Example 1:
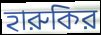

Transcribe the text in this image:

হারুকির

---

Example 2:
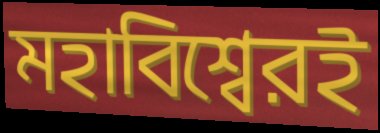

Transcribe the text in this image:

মহাবিশ্বেরই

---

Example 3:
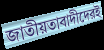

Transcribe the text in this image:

জাতীয়তাবাদীদেরই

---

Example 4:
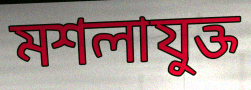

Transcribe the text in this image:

মশলাযুক্ত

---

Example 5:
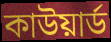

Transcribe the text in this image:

কাউয়ার্ড